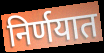
निर्णयात